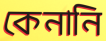
কেনানি